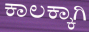
ಕಾಲಕ್ಕಾಗಿ